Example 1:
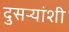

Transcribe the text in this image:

दुसर्‍यांशी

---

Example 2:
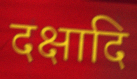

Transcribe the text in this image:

दक्षादि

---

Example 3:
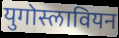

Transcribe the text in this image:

युगोस्लावियन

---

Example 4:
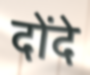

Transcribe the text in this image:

दोंदे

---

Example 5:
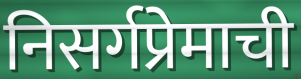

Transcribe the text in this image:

निसर्गप्रेमाची